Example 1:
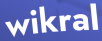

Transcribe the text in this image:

wikral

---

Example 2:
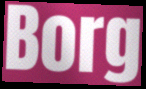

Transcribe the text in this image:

Borg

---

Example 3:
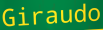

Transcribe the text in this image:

Giraudo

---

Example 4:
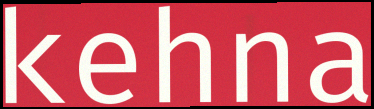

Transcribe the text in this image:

kehna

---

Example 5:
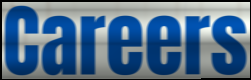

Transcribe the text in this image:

Careers